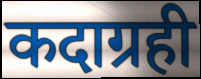
कदाग्रही